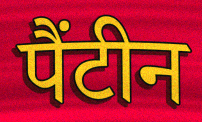
पैंटीन